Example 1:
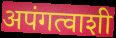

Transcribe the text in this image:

अपंगत्वाशी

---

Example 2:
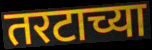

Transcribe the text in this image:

तरटाच्या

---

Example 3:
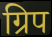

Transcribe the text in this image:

ग्रिप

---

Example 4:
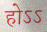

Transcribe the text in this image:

होऽऽ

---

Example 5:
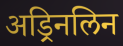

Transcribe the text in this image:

अड्रिनलिन